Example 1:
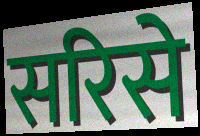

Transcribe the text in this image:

सरिसे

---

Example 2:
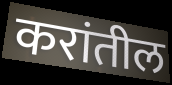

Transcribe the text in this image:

करांतील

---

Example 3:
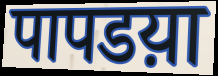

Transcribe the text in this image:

पापडय़ा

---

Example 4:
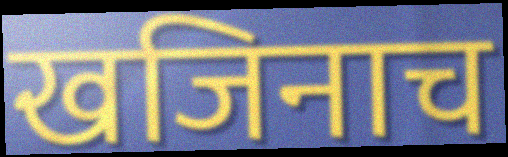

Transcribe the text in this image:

खजिनाच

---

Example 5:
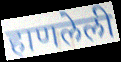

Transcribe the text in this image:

हाणलेली